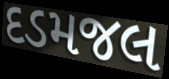
દડમજલ